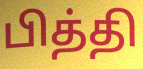
பித்தி